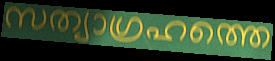
സത്യാഗ്രഹത്തെ